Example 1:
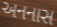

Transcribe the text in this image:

અનનાસ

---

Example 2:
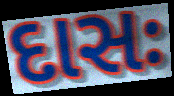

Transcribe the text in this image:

દાસઃ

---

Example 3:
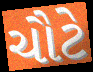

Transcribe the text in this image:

ચૌટે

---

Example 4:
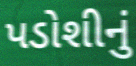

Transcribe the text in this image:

પડોશીનું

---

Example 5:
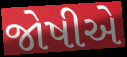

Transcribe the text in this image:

જોષીએ